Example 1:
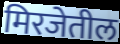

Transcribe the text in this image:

मिरजेतील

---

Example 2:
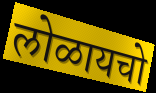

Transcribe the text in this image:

लोळायचो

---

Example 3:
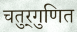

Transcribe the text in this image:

चतुर्गुणित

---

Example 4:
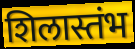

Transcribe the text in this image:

शिलास्तंभ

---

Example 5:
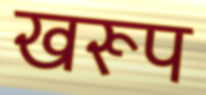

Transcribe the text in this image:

खरूप